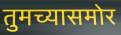
तुमच्यासमोर